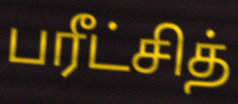
பரீட்சித்